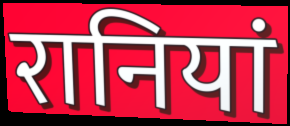
रानियां